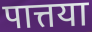
पात्तया